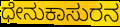
ಧೇನುಕಾಸುರನ